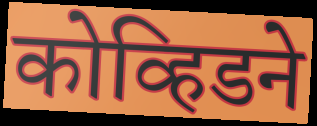
कोव्हिडने